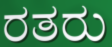
ರತರು